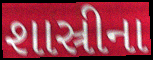
શાસ્રીના